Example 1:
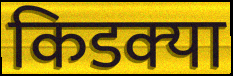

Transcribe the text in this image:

किडक्या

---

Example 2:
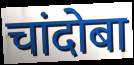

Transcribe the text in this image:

चांदोबा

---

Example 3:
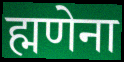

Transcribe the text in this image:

ह्मणेना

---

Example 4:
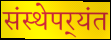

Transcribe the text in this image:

संस्थेपर्यंत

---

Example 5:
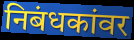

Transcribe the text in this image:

निबंधकांवर